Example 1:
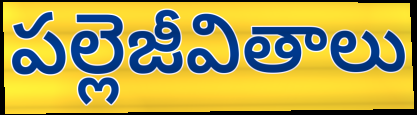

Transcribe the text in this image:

పల్లెజీవితాలు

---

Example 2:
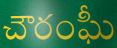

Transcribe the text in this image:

చౌరంఘీ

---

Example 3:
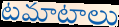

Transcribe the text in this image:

టమాటాలు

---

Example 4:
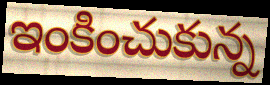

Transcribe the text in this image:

ఇంకించుకున్న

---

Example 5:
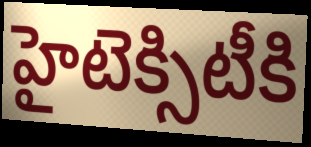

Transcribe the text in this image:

హైటెక్సిటీకి